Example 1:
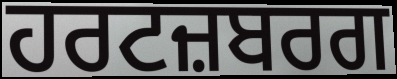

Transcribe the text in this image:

ਹਰਟਜ਼ਬਰਗ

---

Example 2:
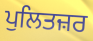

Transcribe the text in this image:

ਪੁਲਿਤਜ਼ਰ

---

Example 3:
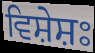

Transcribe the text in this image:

ਵਿਸ਼ੇਸ਼ਃ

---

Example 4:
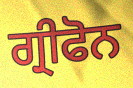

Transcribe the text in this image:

ਗ੍ਰੀਫੋਨ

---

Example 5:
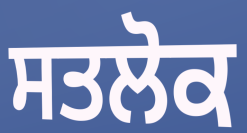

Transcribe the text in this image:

ਸਤਲੋਕ